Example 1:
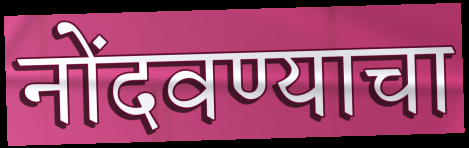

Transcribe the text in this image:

नोंदवण्याचा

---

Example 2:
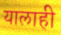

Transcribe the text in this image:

यालाही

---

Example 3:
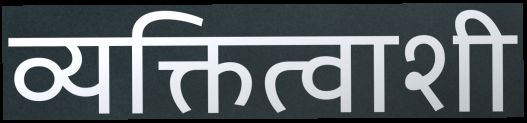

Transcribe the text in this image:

व्यक्तित्वाशी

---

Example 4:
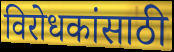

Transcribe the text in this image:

विरोधकांसाठी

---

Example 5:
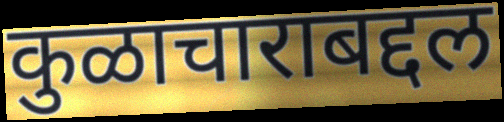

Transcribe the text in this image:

कुळाचाराबद्दल